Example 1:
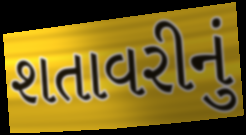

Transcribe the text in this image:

શતાવરીનું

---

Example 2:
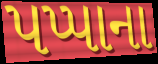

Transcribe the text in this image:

પપ્પાના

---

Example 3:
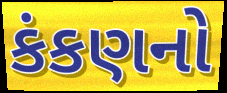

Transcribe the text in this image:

કંકણનો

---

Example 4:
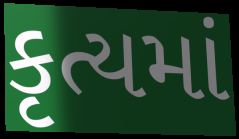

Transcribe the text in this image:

કૃત્યમાં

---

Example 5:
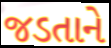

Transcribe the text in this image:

જડતાને